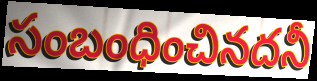
సంబంధించినదనీ